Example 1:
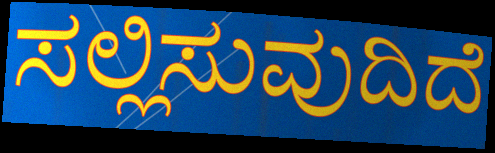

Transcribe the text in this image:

ಸಲ್ಲಿಸುವುದಿದೆ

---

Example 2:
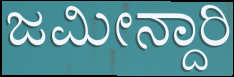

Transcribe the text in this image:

ಜಮೀನ್ದಾರಿ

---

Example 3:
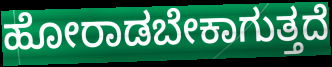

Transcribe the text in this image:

ಹೋರಾಡಬೇಕಾಗುತ್ತದೆ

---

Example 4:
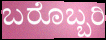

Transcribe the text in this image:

ಬರೊಬ್ಬರಿ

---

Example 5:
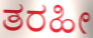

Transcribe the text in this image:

ತರಹೀ